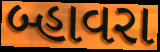
બ્હાવરા